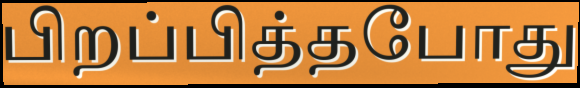
பிறப்பித்தபோது